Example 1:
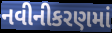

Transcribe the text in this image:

નવીનીકરણમાં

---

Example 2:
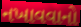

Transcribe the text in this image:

નખાવવાનો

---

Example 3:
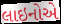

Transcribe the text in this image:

લાઇનોએ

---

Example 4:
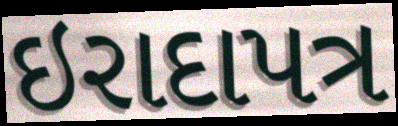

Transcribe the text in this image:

ઇરાદાપત્ર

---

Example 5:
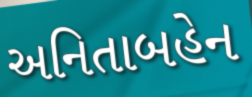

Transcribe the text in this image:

અનિતાબહેન